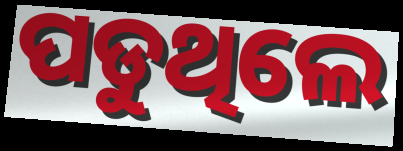
ପଡୁଥିଲେ